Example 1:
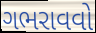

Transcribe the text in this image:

ગભરાવવો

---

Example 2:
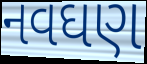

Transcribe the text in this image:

નવઘણ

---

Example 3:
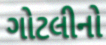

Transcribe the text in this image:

ગોટલીનો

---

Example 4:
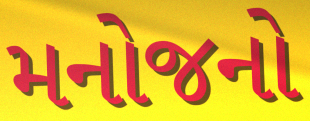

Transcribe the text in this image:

મનોજનો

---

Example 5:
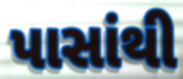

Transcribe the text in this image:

પાસાંથી